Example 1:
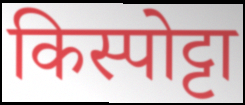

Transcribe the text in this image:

किस्पोट्टा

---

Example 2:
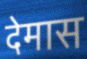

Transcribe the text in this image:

देमास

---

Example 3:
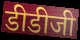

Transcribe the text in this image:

डीडीजी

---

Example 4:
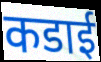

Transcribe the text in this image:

कडाई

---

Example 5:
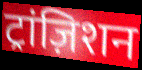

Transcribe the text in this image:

ट्रांज़िशन